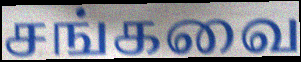
சங்கவை